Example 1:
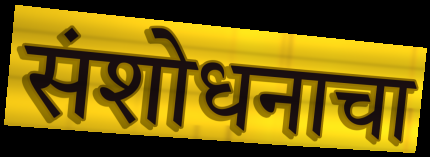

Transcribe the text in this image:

संशोधनाचा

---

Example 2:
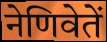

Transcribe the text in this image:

नेणिवेतें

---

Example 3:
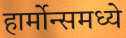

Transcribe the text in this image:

हार्मोन्समध्ये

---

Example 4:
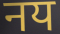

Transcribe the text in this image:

नय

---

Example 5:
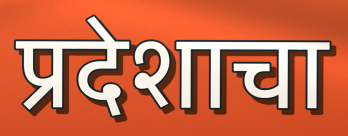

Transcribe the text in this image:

प्रदेशाचा